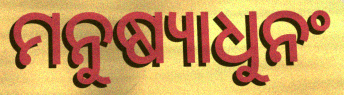
ମନୁଷ୍ୟାଧୁନଂ